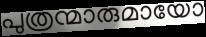
പുത്രന്മാരുമായോ